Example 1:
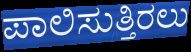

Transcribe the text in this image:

ಪಾಲಿಸುತ್ತಿರಲು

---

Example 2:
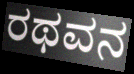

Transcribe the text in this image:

ರಥವನ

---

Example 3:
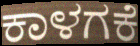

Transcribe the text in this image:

ಕಾಳಗಕೆ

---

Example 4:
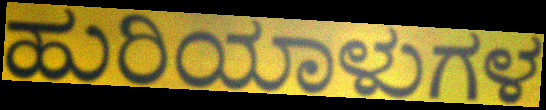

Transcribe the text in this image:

ಹುರಿಯಾಳುಗಳ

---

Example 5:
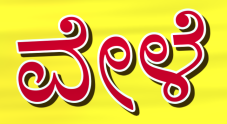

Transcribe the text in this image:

ವೇಳೆ